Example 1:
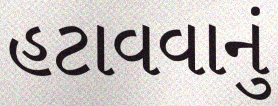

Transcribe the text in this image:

હટાવવાનું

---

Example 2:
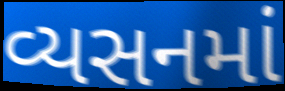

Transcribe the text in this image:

વ્યસનમાં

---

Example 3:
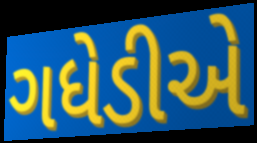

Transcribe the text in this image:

ગધેડીએ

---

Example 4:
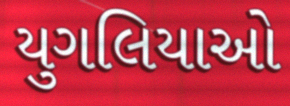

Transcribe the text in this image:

યુગલિયાઓ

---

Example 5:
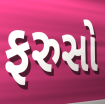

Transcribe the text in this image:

ફરુસો